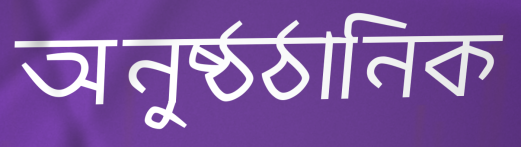
অনুষ্ঠঠানিক